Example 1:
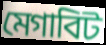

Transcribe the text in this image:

মেগাবিট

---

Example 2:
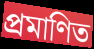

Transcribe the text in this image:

প্রমাণিত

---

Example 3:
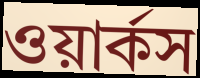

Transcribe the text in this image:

ওয়ার্কস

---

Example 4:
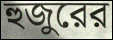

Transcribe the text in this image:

হুজুরের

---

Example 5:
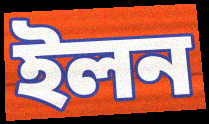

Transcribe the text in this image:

ইলন